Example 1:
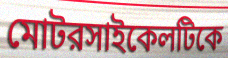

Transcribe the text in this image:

মোটরসাইকেলটিকে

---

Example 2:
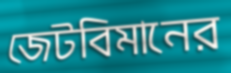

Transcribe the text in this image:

জেটবিমানের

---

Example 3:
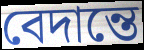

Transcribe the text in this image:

বেদান্তে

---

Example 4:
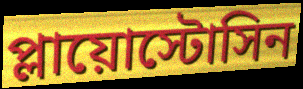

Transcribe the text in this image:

প্লায়োস্টোসিন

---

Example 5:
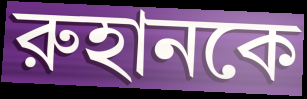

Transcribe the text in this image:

রুহানকে